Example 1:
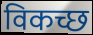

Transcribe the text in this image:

विकच्छ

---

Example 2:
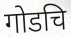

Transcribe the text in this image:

गोडचि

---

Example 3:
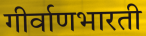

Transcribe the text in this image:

गीर्वाणभारती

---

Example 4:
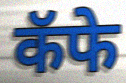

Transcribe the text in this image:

कॅफे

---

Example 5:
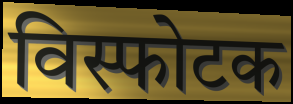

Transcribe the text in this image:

विस्फोटक